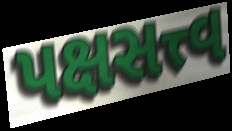
પક્ષસત્ત્વ